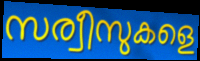
സര്വീസുകളെ